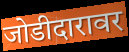
जोडीदारावर